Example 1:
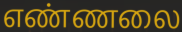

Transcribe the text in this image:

எண்ணலை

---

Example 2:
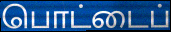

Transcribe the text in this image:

பொட்டைப்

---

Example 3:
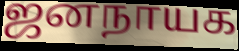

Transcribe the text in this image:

ஜனநாயக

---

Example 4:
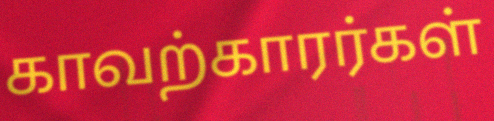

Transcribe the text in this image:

காவற்காரர்கள்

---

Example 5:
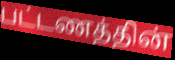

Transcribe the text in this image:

பட்டணத்தின்